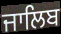
ਜਾਲਿਬ